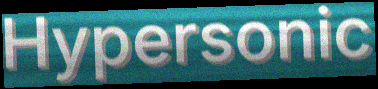
Hypersonic